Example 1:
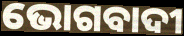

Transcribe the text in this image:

ଭୋଗବାଦୀ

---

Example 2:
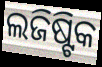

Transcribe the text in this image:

ଲଜିଷ୍ଟିକ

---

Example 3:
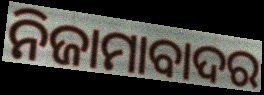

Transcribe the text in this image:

ନିଜାମାବାଦର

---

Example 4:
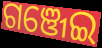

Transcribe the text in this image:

ଗଞ୍ଜେଇ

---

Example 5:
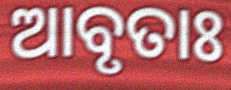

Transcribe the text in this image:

ଆବୃତାଃ